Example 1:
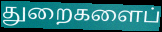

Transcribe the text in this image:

துறைகளைப்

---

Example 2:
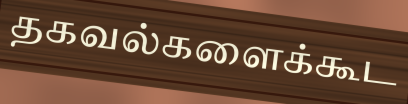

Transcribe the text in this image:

தகவல்களைக்கூட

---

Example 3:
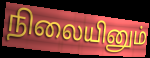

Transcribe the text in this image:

நிலையினும்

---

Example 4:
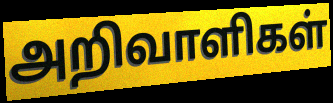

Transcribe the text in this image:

அறிவாளிகள்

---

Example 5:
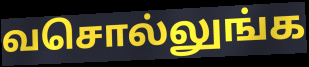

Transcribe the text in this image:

வசொல்லுங்க